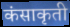
कंसाकृती